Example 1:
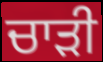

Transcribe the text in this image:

ਚਾਡ਼ੀ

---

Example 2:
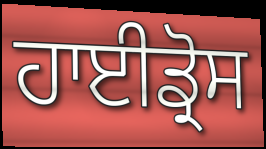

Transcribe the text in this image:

ਹਾਈਡ੍ਰੋਸ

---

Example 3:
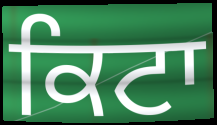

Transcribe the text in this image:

ਕਿਟਾ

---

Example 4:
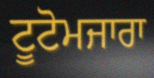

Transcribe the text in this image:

ਟੂਟੋਮਜਾਰਾ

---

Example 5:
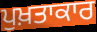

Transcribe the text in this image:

ਪੁਖ਼ਤਾਕਾਰ